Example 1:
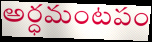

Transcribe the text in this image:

అర్ధమంటపం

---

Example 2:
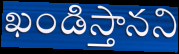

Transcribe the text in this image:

ఖండిస్తానని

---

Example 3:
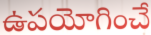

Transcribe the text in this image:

ఉపయోగించే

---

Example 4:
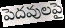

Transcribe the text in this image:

పెదవులపై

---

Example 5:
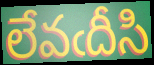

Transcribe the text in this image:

లేవఁదీసి